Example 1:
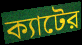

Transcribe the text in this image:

ক্যাটের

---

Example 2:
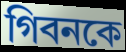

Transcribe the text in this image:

গিবনকে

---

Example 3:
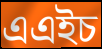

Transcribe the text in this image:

এএইচ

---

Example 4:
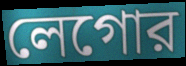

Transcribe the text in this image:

লেগোর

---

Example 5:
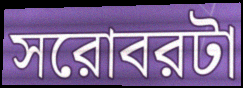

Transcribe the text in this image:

সরোবরটা